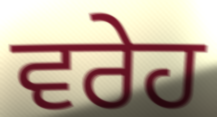
ਵਰੇਹ